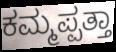
ಕಮ್ಮಪ್ಪತ್ತಾ